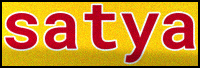
satya